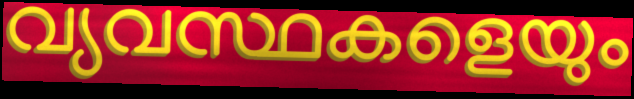
വ്യവസ്ഥകളെയും